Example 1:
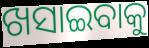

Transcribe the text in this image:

ଖସାଇବାକୁ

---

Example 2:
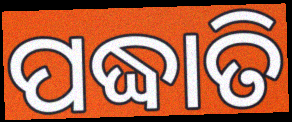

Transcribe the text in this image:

ପଦ୍ଧାତି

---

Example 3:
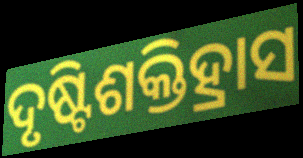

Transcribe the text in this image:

ଦୃଷ୍ଟିଶକ୍ତିହ୍ରାସ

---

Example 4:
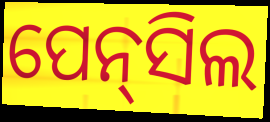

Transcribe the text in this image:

ପେନ୍‍ସିଲ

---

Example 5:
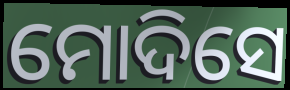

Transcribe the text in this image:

ମୋଦିସେ